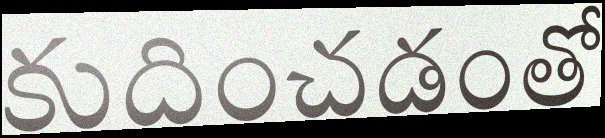
కుదించడంతో